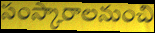
సంస్కారాలనుంచి